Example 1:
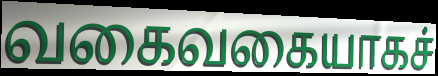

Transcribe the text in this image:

வகைவகையாகச்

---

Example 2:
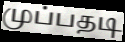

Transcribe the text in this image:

முப்பதடி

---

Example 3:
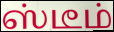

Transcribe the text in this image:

ஸ்டீம்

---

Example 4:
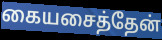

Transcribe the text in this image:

கையசைத்தேன்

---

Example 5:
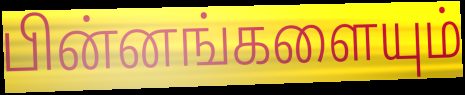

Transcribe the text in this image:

பின்னங்களையும்